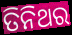
ତିନିଥର